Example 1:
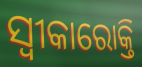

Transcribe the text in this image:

ସ୍ୱୀକାରୋକ୍ତି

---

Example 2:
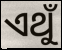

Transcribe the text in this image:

ଏଥୁଁ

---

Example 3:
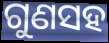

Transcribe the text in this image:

ଗୁଣସହ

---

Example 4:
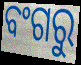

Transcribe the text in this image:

ବଂଗରୁ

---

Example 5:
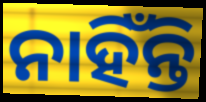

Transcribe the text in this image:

ନାହିଁନ୍ତି